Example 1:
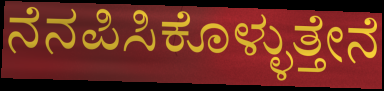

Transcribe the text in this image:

ನೆನಪಿಸಿಕೊಳ್ಳುತ್ತೇನೆ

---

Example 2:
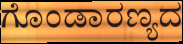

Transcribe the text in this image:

ಗೊಂಡಾರಣ್ಯದ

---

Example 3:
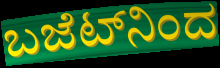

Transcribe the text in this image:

ಬಜೆಟ್‌ನಿಂದ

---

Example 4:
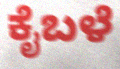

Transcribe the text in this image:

ಕೈಬಳೆ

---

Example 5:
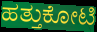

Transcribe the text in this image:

ಹತ್ತುಕೋಟಿ